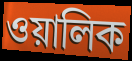
ওয়ালিক